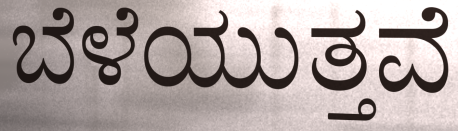
ಬೆಳೆಯುತ್ತವೆ